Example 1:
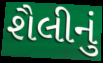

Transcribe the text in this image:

શૈલીનું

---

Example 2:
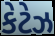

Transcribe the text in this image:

કેટેઝ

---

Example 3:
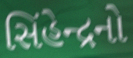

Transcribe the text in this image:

સિંહેન્દ્રનો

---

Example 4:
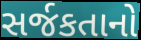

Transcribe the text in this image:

સર્જકતાનો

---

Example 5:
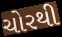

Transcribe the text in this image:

ચોરથી